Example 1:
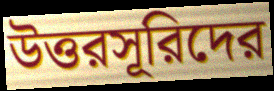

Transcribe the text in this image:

উত্তরসূরিদের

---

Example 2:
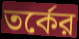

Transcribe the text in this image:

তর্কের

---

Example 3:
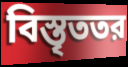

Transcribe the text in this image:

বিস্তৃততর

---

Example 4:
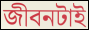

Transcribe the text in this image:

জীবনটাই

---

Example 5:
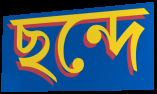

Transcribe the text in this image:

ছন্দে